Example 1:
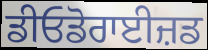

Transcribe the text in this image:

ਡੀਓਡੋਰਾਈਜ਼ਡ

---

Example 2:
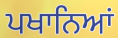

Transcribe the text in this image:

ਪਖਾਨਿਆਂ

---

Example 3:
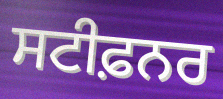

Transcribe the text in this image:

ਸਟੀਫ਼ਨਰ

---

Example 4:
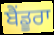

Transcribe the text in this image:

ਬੈਂਡੂਰਾ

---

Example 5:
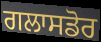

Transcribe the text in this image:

ਗਲਾਸਡੋਰ